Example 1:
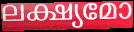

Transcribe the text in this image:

ലക്ഷ്യമോ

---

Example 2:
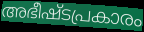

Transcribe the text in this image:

അഭീഷ്ടപ്രകാരം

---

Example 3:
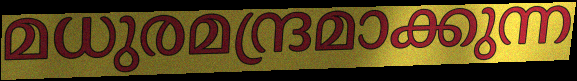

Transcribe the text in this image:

മധുരമന്ദ്രമാക്കുന്ന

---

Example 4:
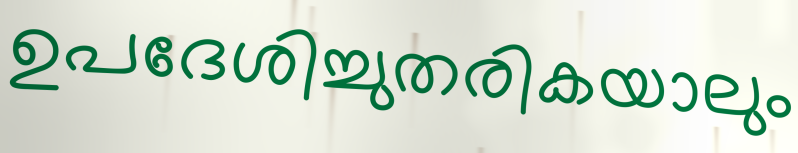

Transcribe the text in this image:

ഉപദേശിച്ചുതരികയാലും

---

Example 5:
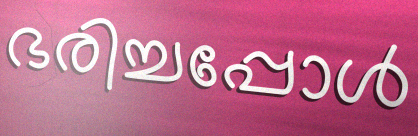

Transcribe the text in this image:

ഭരിച്ചപ്പോൾ